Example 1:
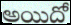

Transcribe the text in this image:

అయిదో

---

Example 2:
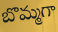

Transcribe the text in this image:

బొమ్మగా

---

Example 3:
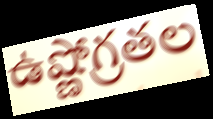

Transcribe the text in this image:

ఉష్ణోగ్రతల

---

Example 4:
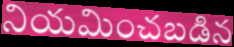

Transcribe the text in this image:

నియమించబడిన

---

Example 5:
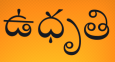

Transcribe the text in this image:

ఉధృతి